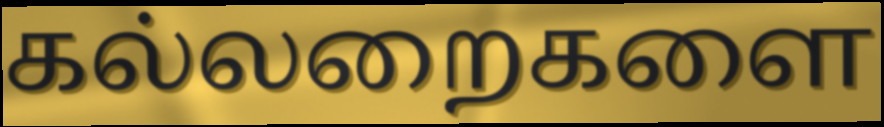
கல்லறைகளை